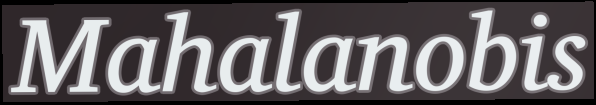
Mahalanobis